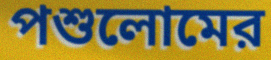
পশুলোমের